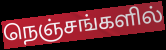
நெஞ்சங்களில்